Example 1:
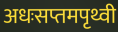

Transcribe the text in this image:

अधःसप्तमपृथ्वी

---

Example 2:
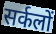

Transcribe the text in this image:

सर्कलों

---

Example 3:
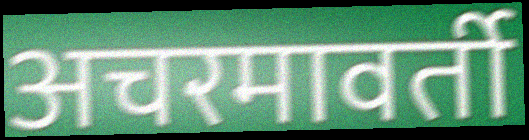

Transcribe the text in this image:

अचरमावर्ती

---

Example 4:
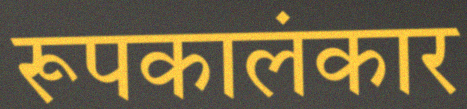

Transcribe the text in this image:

रूपकालंकार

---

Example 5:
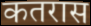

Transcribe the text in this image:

कतरास